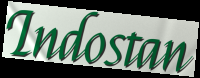
Indostan